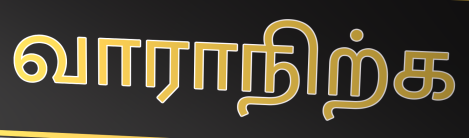
வாராநிற்க